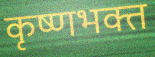
कृष्णभक्त